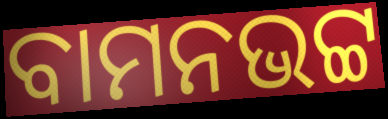
ବାମନଭଟ୍ଟ